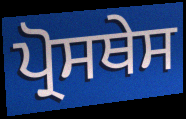
ਪ੍ਰੋਸਥੇਸ